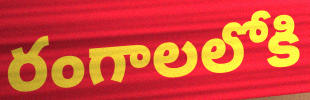
రంగాలలోకి